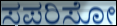
ಸಪರಿಸೋ